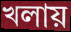
খলায়